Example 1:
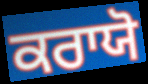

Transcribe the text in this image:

ਕਰਾਯੋ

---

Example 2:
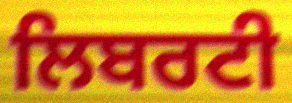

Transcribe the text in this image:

ਲਿਬਰਟੀ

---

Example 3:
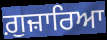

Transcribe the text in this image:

ਗ਼ੁਜ਼ਾਰਿਆ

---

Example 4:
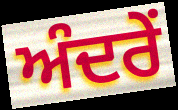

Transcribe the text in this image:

ਅੰਦਰੇਂ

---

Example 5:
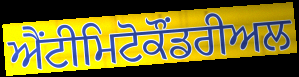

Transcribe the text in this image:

ਐਂਟੀਮਿਟੋਕੌਂਡਰੀਅਲ